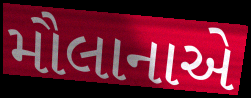
મૌલાનાએ